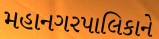
મહાનગરપાલિકાને